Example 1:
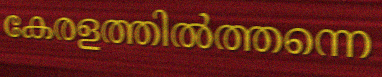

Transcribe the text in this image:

കേരളത്തിൽത്തന്നെ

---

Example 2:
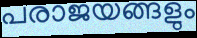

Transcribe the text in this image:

പരാജയങ്ങളും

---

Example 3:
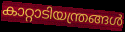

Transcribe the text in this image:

കാറ്റാടിയന്ത്രങ്ങൾ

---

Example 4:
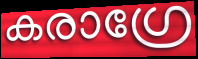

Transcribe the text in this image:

കരാഗ്രേ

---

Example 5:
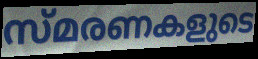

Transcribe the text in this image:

സ്മരണകളുടെ